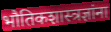
भौतिकशास्त्रज्ञांना